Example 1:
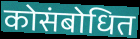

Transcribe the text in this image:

कोसंबोधित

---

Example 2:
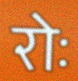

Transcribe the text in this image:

रोः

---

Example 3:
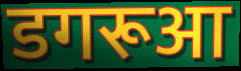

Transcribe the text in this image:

डगरूआ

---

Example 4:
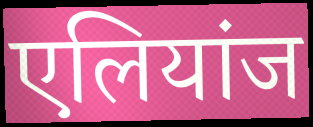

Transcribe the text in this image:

एलियांज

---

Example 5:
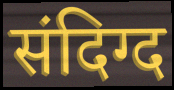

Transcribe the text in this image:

संदिग्द